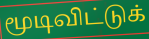
மூடிவிட்டுக்